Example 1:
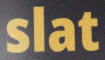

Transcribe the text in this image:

slat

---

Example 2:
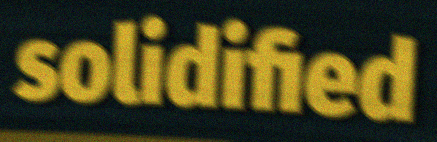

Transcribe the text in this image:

solidified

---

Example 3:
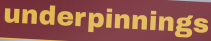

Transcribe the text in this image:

underpinnings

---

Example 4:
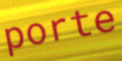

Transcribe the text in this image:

porte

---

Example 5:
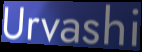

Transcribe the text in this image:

Urvashi